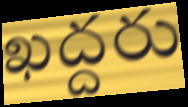
ఖద్దరు